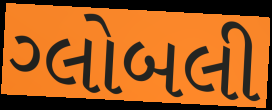
ગ્લોબલી